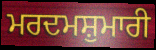
ਮਰਦਮਸ਼ੁਮਾਰੀ